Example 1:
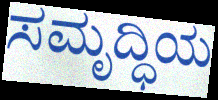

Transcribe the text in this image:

ಸಮೃದ್ಧಿಯ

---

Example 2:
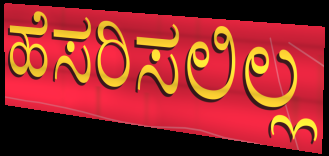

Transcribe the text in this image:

ಹೆಸರಿಸಲಿಲ್ಲ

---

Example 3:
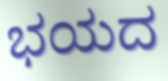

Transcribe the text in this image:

ಭಯದ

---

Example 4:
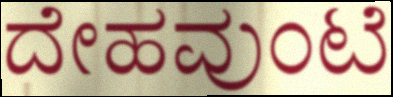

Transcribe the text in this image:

ದೇಹವುಂಟೆ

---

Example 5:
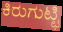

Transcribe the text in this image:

ಕಿರುಗುಟ್ಟಿ